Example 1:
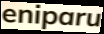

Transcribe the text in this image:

eniparu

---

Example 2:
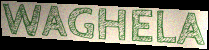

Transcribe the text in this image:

WAGHELA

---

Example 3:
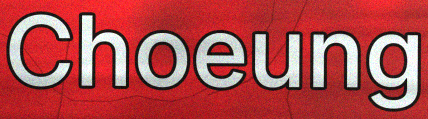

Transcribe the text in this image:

Choeung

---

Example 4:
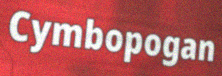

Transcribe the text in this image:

Cymbopogan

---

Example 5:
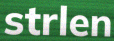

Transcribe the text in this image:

strlen